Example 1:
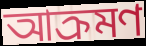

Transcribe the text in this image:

আক্ৰমণ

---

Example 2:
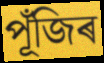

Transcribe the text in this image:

পূঁজিৰ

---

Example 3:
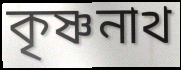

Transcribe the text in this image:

কৃষ্ণনাথ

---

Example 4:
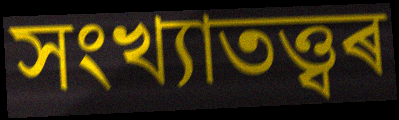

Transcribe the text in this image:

সংখ্যাতত্ত্বৰ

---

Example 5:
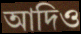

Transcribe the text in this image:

আদিও